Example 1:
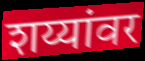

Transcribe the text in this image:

शय्यांवर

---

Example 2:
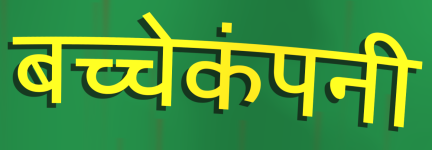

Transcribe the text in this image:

बच्चेकंपनी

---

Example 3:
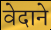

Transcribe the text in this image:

वेदाने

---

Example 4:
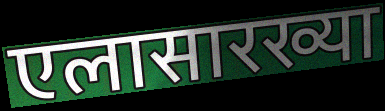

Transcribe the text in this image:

एलासारख्या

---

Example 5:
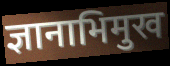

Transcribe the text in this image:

ज्ञानाभिमुख